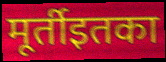
मूर्तीइतका